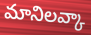
మానిలవ్కా